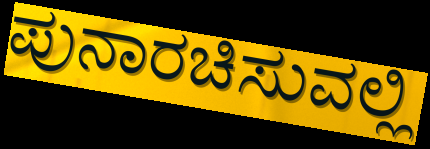
ಪುನಾರಚಿಸುವಲ್ಲಿ